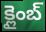
క్లైంబ్